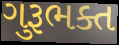
ગુરૂભક્ત